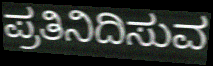
ಪ್ರತಿನಿದಿಸುವ